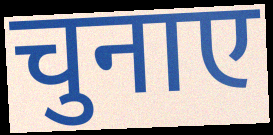
चुनाए